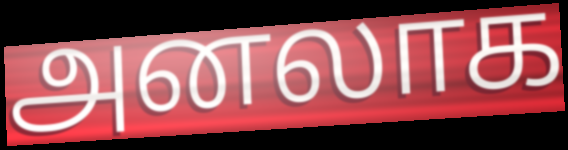
அனலாக